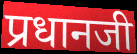
प्रधानजी